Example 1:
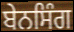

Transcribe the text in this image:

ਬੇਨਸਿੰਗ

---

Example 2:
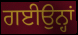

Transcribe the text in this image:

ਗਈਉਨ੍ਹਾਂ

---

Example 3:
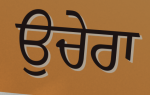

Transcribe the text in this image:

ਉਚੇਰਾ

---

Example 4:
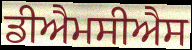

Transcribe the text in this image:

ਡੀਐਮਸੀਐਸ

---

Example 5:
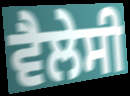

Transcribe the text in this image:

ਵੈਲੇਸੀ